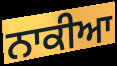
ਨਾਕੀਆ